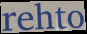
rehto